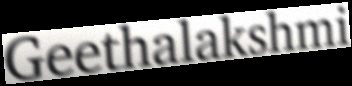
Geethalakshmi